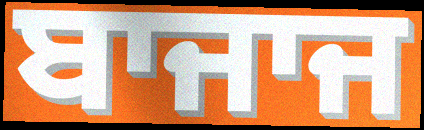
ਬਾਜਾਜ